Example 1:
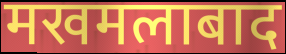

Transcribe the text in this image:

मखमलाबाद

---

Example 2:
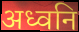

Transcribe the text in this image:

अध्वनि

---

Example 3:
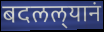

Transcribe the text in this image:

बदलल्यानं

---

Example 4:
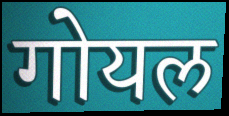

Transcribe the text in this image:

गोयल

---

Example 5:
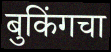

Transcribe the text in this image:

बुकिंगचा